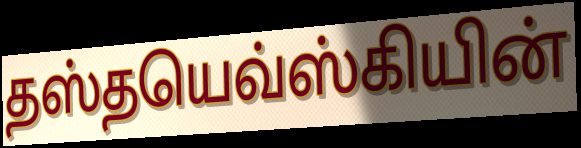
தஸ்தயெவ்ஸ்கியின்